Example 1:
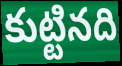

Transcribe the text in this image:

కుట్టినది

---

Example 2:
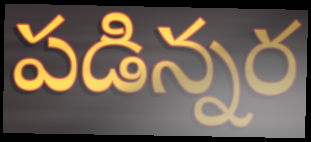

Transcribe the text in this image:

పడిన్నర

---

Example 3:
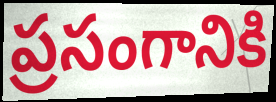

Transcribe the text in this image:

ప్రసంగానికి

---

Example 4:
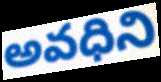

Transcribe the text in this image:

అవధిని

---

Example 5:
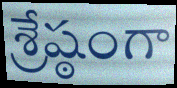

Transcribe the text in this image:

శ్రేష్ఠంగా